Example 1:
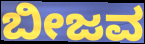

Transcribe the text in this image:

ಬೀಜವ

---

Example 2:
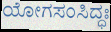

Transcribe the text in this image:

ಯೋಗಸಂಸಿದ್ಧಃ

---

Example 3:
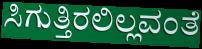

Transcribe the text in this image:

ಸಿಗುತ್ತಿರಲಿಲ್ಲವಂತೆ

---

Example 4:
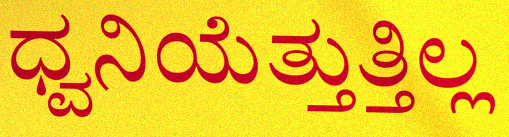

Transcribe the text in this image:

ಧ್ವನಿಯೆತ್ತುತ್ತಿಲ್ಲ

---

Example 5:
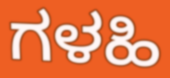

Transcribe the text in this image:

ಗಳಹಿ